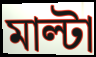
মাল্টা